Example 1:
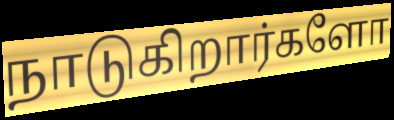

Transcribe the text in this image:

நாடுகிறார்களோ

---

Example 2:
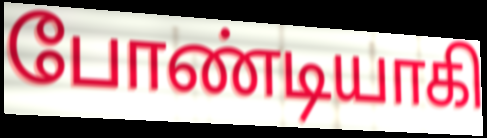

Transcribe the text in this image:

போண்டியாகி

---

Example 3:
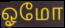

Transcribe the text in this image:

ஓமோ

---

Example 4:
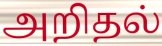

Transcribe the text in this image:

அறிதல்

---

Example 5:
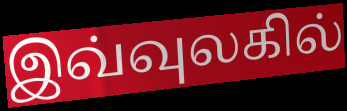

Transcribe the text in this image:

இவ்வுலகில்